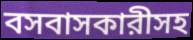
বসবাসকারীসহ